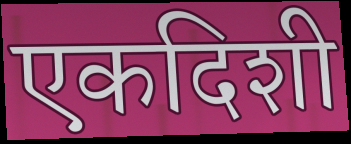
एकदिशी